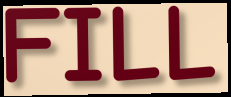
FILL